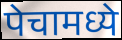
पेचामध्ये